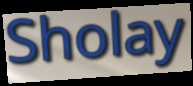
Sholay